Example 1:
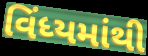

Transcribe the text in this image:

વિંધ્યમાંથી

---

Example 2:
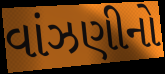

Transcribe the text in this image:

વાંઝણીનો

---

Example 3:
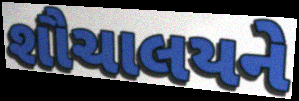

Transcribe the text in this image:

શૌચાલયને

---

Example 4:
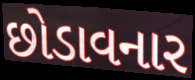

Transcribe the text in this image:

છોડાવનાર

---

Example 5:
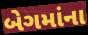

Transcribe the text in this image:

બેગમાંના